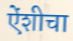
ऐंशीचा